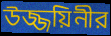
উজ্জয়িনীর